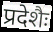
प्रदेशैः